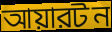
আয়ারটন